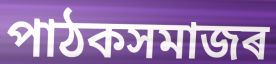
পাঠকসমাজৰ